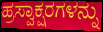
ಹ್ರಸ್ವಾಕ್ಷರಗಳನ್ನು